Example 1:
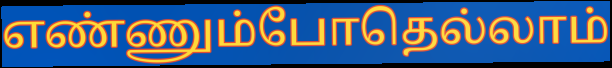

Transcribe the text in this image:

எண்ணும்போதெல்லாம்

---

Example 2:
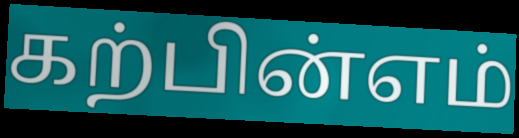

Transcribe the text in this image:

கற்பின்எம்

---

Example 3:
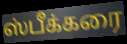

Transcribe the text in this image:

ஸ்பீக்கரை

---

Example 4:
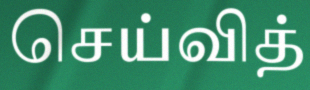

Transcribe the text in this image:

செய்வித்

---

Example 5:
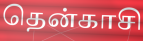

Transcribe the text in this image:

தென்காசி